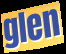
glen